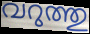
വറുത്തു